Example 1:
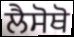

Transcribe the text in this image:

ਲੈਸੋਥੋ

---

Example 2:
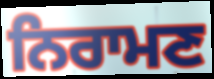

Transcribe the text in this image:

ਨਿਰਾਮਣ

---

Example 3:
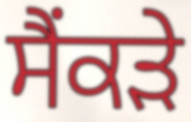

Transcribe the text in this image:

ਸੈਂਕੜੇ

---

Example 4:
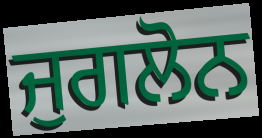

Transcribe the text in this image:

ਜੁਗਲੋਨ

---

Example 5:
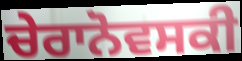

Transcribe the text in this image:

ਚੇਰਾਨੋਵਸਕੀ